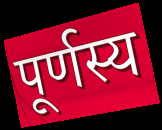
पूर्णस्य